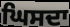
ਘਿਸਦਾ